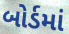
બોર્ડમાં